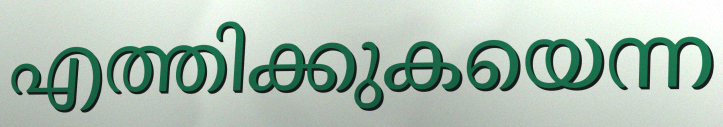
എത്തിക്കുകയെന്ന